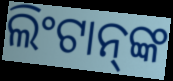
ଲିଂଟାନ୍‍ଙ୍କ